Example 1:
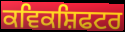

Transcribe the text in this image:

ਕਵਿਕਸ਼ਿਫਟਰ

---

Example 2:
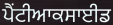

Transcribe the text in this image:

ਪੈਂਟੀਆਕਸਾਈਡ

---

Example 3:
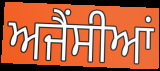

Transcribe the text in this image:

ਅਜੈਂਸੀਆਂ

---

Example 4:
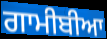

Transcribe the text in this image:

ਗਾਮੀਬੀਆ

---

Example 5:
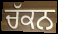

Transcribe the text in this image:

ਚੱਕਨ